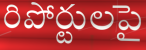
రిపోర్టులపై